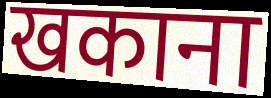
खकाना